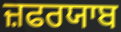
ਜ਼ਫਰਯਾਬ